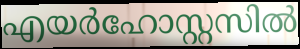
എയർഹോസ്റ്റസിൽ